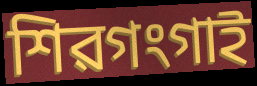
শিৱগংগাই